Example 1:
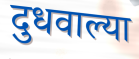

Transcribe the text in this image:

दुधवाल्या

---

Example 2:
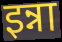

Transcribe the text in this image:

इन्ना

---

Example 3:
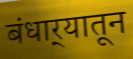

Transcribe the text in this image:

बंधार्यातून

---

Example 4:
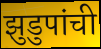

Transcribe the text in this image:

झुडुपांची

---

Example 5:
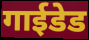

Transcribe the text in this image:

गाईडेड